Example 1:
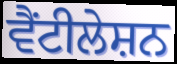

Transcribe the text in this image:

ਵੈਂਟੀਲੇਸ਼ਨ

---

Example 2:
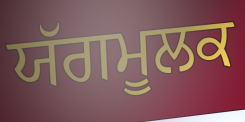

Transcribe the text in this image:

ਯੱਗਮੂਲਕ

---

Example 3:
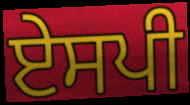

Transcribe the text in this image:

ਏਸਪੀ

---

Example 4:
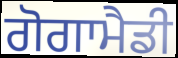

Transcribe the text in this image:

ਗੋਗਾਮੈਡੀ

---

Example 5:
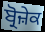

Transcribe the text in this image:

ਬ੍ਰੋਜ਼ੇਕ